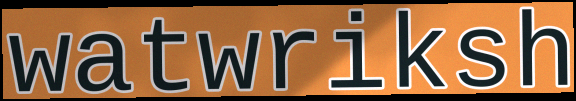
watwriksh